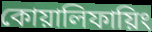
কোয়ালিফায়িং